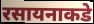
रसायनाकडे